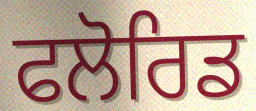
ਫਲੋਰਿਡ